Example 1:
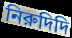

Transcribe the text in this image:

নিরুদিদি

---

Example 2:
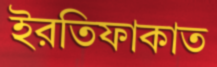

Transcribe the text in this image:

ইরতিফাকাত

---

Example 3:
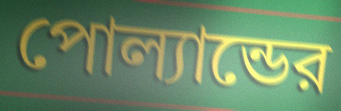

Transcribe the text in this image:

পোল্যান্ডের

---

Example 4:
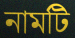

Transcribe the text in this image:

নামটি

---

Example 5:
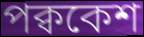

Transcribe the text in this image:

পক্বকেশ